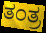
ತಂತ್ರ